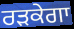
ਰੜਕੇਗਾ